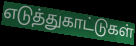
எடுத்துகாட்டுகள்